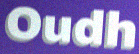
Oudh